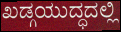
ಖಡ್ಗಯುದ್ಧದಲ್ಲಿ